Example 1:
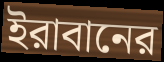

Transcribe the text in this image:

ইরাবানের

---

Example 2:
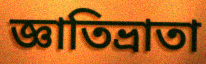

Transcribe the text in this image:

জ্ঞাতিভ্রাতা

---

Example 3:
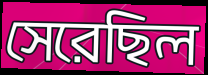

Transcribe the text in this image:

সেরেছিল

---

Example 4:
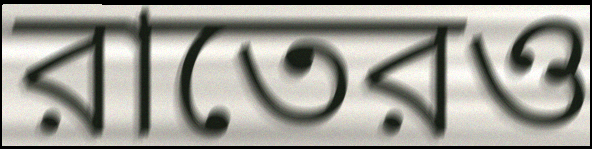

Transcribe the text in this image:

রাতেরও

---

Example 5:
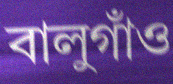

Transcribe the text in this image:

বালুগাঁও